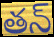
తన్